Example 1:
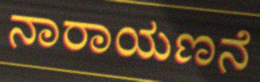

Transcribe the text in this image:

ನಾರಾಯಣನೆ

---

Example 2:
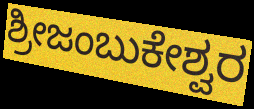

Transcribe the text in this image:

ಶ್ರೀಜಂಬುಕೇಶ್ವರ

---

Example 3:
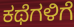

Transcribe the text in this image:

ಕಥೆಗಳಿಗೆ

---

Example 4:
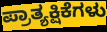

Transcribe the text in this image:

ಪ್ರಾತ್ಯಕ್ಷಿಕೆಗಳು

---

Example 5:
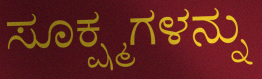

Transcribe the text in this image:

ಸೂಕ್ಷ್ಮಗಳನ್ನು